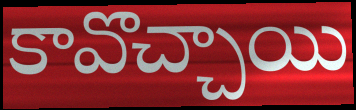
కావొచ్చాయి